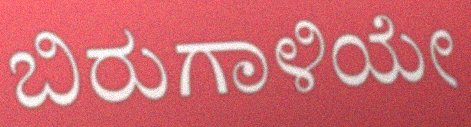
ಬಿರುಗಾಳಿಯೇ